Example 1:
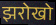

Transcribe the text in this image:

झरोखो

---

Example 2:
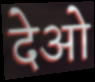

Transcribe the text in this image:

देओ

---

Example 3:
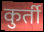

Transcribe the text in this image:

कुर्ती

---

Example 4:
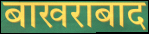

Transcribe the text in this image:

बाखराबाद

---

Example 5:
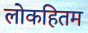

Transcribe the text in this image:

लोकहितम